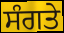
ਸੰਗਤੇ